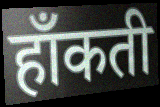
हाँकती